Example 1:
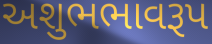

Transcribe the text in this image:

અશુભભાવરૂપ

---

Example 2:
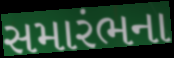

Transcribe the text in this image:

સમારંભના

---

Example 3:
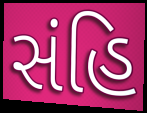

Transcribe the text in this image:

સંહિ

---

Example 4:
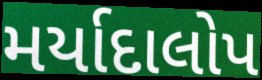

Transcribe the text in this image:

મર્યાદાલોપ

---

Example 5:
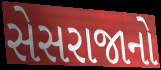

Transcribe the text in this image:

સેસરાજાનો